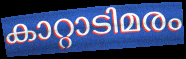
കാറ്റാടിമരം